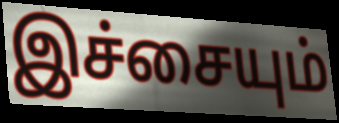
இச்சையும்